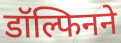
डॉल्फिनने